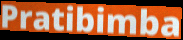
Pratibimba